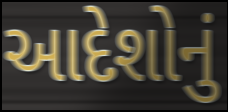
આદેશોનું